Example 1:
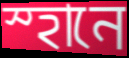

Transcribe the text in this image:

স্হানে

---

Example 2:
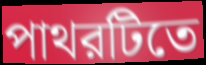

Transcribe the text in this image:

পাথরটিতে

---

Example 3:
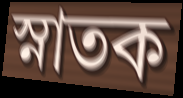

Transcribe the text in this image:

স্নাতক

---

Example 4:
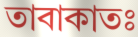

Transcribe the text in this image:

তাবাকাতঃ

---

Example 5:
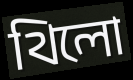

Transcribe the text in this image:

থিলো